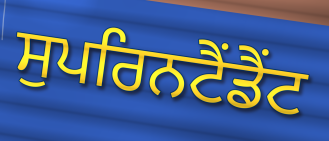
ਸੁਪਰਿਨਟੈਂਡੈਂਟ